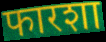
फारशा